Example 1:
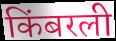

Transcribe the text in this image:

किंबरली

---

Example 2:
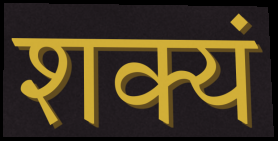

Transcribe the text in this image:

शक्यं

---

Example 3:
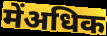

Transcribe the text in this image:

मेंअधिक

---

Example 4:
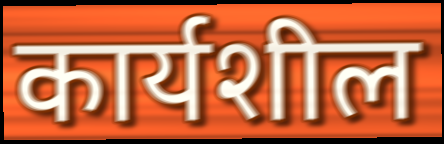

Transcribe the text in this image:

कार्यशील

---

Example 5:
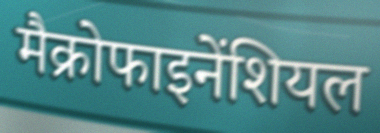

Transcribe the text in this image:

मैक्रोफाइनेंशियल